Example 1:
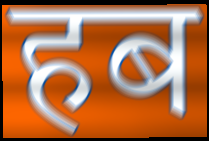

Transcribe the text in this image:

हब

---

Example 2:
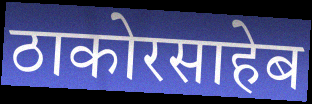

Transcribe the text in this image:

ठाकोरसाहेब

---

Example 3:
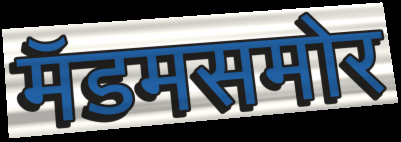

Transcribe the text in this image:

मॅडमसमोर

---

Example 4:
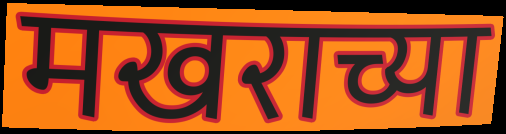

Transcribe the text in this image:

मखराच्या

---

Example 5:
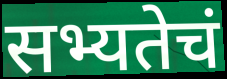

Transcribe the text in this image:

सभ्यतेचं